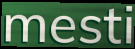
mesti